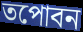
তপোবন